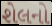
શેલનો